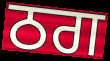
ਠਗ